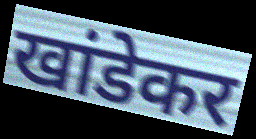
खांडेकर